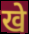
खे